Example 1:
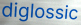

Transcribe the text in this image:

diglossic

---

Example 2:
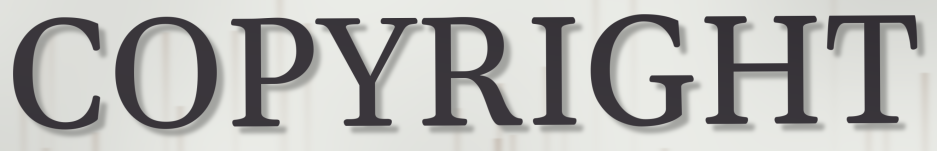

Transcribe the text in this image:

COPYRIGHT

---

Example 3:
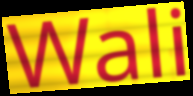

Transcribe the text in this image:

Wali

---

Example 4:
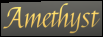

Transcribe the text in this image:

Amethyst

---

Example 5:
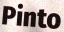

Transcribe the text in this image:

Pinto